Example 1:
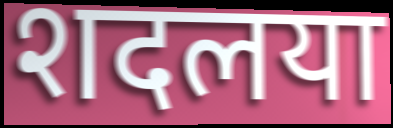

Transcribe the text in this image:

शदलया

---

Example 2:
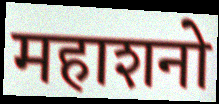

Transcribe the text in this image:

महाशनो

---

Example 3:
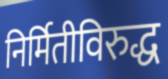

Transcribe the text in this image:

निर्मितीविरुद्ध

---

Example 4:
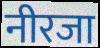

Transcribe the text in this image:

नीरजा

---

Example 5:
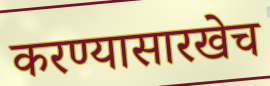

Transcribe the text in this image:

करण्यासारखेच